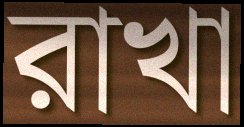
রাখা